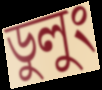
ডুলুং